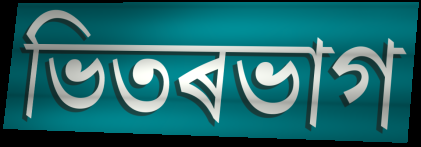
ভিতৰভাগ